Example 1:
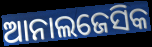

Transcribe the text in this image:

ଆନାଲଜେସିକ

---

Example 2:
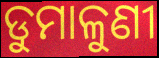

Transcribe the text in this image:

ଡୁମାଳୁଣୀ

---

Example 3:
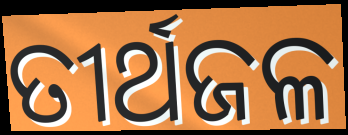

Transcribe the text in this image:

ତୀର୍ଥଜଳ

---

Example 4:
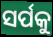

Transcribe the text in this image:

ସର୍ପକୁ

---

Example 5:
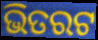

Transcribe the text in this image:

ଭିତରଟ